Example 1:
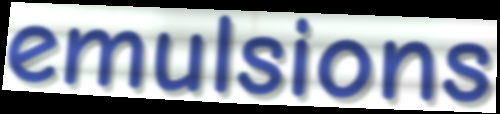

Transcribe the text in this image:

emulsions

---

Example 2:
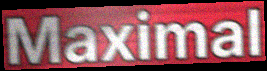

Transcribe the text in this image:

Maximal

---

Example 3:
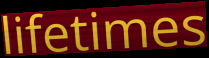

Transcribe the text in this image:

lifetimes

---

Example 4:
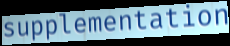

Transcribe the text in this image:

supplementation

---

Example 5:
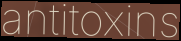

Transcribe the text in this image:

antitoxins